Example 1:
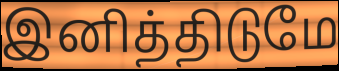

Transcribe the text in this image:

இனித்திடுமே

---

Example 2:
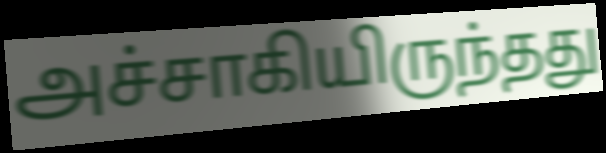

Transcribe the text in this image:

அச்சாகியிருந்தது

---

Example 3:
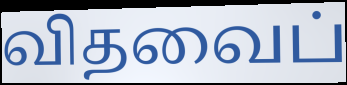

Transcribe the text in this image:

விதவைப்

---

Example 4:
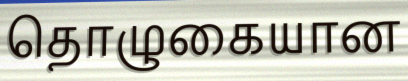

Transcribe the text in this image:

தொழுகையான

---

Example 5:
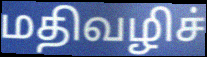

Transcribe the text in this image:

மதிவழிச்